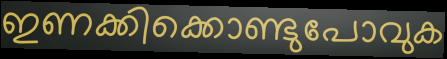
ഇണക്കിക്കൊണ്ടുപോവുക